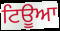
ਟਿਊਆ